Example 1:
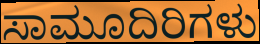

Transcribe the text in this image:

ಸಾಮೂದಿರಿಗಳು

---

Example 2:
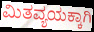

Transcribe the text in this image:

ಮಿತವ್ಯಯಕ್ಕಾಗಿ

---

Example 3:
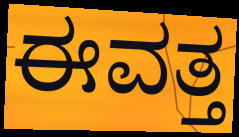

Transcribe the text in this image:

ಈವತ್ತ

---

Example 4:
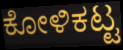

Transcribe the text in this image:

ಕೋಳಿಕಟ್ಟ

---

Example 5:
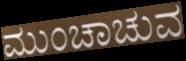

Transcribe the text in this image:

ಮುಂಚಾಚುವ